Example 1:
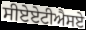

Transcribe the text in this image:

ਸੀਏਏਟੀਐਸਏ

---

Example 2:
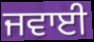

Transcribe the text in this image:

ਜਵਾਈ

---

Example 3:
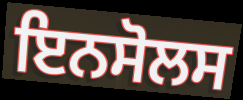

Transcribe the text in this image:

ਇਨਸੋਲਸ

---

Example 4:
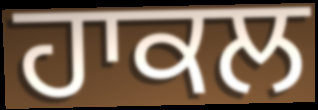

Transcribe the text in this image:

ਹਾਕਲ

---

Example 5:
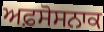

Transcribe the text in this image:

ਅਫ਼ਸੋਸਨਾਕ